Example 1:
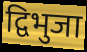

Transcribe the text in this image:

द्विभुजा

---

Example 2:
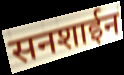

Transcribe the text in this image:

सनशाईन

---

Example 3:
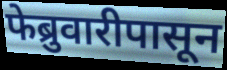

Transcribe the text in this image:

फेब्रुवारीपासून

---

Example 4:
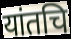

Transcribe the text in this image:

यांतचि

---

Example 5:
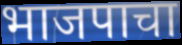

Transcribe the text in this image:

भाजपाचा